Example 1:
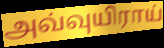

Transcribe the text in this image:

அவ்வுயிராய்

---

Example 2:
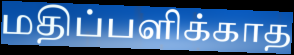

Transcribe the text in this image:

மதிப்பளிக்காத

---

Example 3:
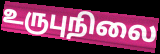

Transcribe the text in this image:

உருபுநிலை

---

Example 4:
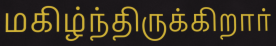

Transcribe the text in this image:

மகிழ்ந்திருக்கிறார்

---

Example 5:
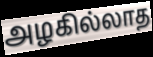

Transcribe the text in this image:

அழகில்லாத